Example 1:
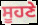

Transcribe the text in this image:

ਸੂਹਣੇ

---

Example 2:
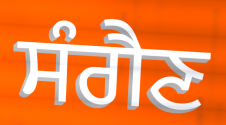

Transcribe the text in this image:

ਸੰਗੈਣ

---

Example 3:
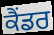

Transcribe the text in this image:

ਕੈਂਡਰ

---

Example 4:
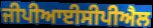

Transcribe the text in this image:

ਜੀਪੀਆਈਸੀਪੀਐਲ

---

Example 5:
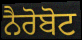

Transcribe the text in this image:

ਨੈਰੋਬੋਟ